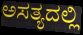
ಅಸತ್ಯದಲ್ಲಿ